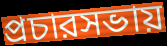
প্রচারসভায়